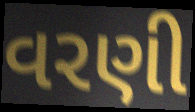
વરણી